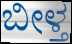
ಬೀಳ್ತ